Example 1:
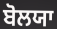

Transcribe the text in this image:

ਬੋਲਯਾ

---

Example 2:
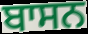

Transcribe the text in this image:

ਬਾਸਨ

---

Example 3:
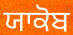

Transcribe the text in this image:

ਯਾਕੋਬ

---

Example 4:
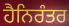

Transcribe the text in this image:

ਹੈਨਿਰੰਤਰ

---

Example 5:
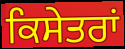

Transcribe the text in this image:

ਕਿਸੇਤਰਾਂ